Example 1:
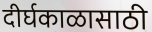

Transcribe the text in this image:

दीर्घकाळासाठी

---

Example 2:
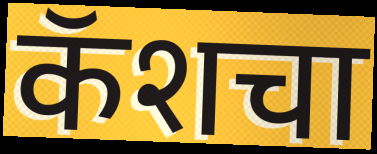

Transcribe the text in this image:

कॅशचा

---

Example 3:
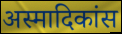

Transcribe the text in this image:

अस्मादिकांस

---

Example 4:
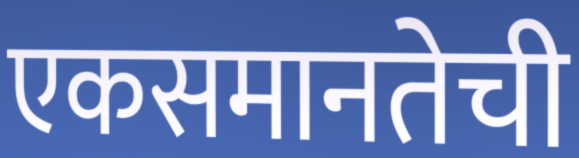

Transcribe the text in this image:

एकसमानतेची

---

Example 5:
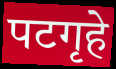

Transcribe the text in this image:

पटगृहे